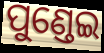
ପୁଣ୍ଡେଇ